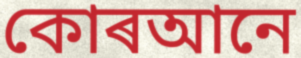
কোৰআনে